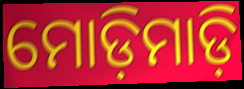
ମୋଡ଼ିମାଡ଼ି